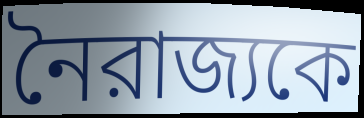
নৈরাজ্যকে